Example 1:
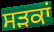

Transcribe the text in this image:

ਸਡ਼ਕਾਂ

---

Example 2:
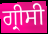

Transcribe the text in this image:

ਗ੍ਰੀਸੀ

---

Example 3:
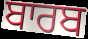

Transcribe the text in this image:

ਬਾਰਬ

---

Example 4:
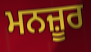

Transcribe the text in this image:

ਮਨਜ਼ੂਰ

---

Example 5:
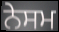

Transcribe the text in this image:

ਨੇਸਮ